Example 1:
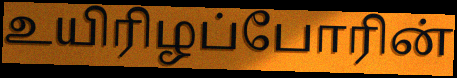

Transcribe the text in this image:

உயிரிழப்போரின்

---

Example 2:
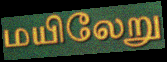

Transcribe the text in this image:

மயிலேறு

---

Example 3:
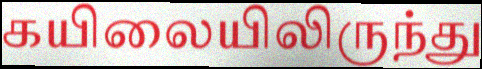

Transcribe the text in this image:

கயிலையிலிருந்து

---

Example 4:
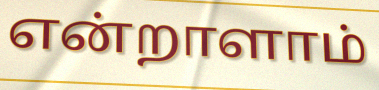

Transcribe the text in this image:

என்றாளாம்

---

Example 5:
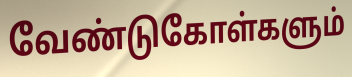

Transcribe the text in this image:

வேண்டுகோள்களும்